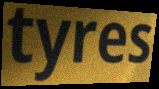
tyres